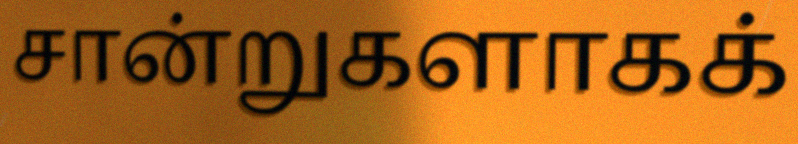
சான்றுகளாகக்